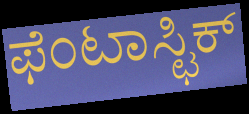
ಫೆಂಟಾಸ್ಟಿಕ್